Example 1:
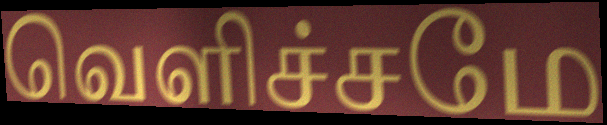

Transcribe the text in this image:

வெளிச்சமே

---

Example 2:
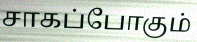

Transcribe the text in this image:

சாகப்போகும்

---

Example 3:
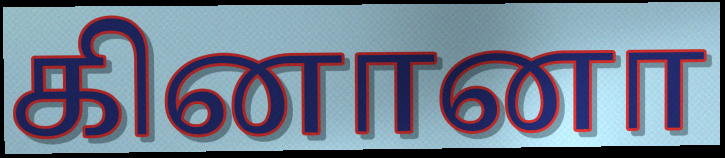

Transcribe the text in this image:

கினானா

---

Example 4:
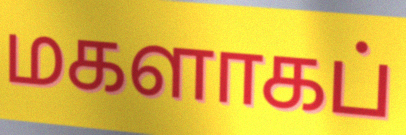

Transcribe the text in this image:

மகளாகப்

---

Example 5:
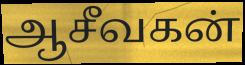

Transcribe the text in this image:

ஆசீவகன்